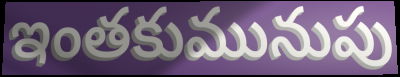
ఇంతకుమునుపు